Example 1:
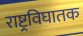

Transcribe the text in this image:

राष्ट्रविघातक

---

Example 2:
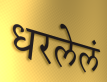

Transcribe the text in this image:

धरलेलं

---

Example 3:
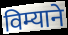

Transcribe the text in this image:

विम्याने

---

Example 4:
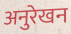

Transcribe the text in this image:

अनुरेखन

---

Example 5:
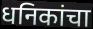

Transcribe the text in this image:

धनिकांचा